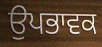
ਉਪਭਾਵਕ